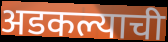
अडकल्याची